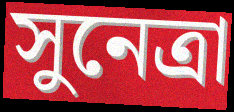
সুনেত্রা